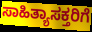
ಸಾಹಿತ್ಯಾಸಕ್ತರಿಗೆ